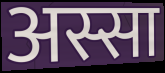
अस्सा